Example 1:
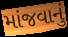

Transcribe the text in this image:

માંજવાનું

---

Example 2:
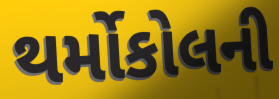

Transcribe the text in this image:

થર્મોકોલની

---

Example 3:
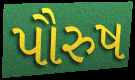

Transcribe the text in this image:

પૌરુષ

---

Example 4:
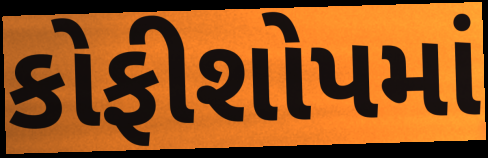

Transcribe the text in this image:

કોફીશોપમાં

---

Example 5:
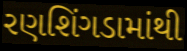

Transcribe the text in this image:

રણશિંગડામાંથી